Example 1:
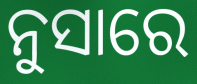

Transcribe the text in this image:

ନୁସାରେ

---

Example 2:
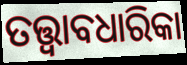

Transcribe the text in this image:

ତତ୍ତ୍ୱାବଧାରିକା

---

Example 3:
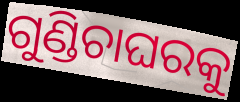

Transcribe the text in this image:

ଗୁଣ୍ଡିଚାଘରକୁ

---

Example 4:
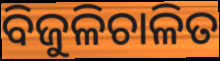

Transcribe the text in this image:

ବିଜୁଳିଚାଳିତ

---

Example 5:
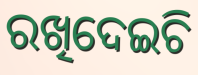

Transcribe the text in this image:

ରଖିଦେଇଚି